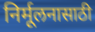
निर्मूलनासाठी